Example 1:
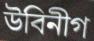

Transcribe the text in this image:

উবিনীগ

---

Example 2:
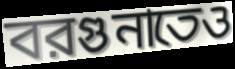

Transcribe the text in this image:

বরগুনাতেও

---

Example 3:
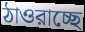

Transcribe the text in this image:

ঠাওরাচ্ছে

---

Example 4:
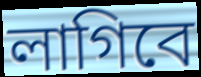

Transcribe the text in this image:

লাগিবে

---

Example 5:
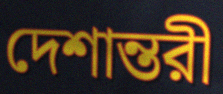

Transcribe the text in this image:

দেশান্তরী